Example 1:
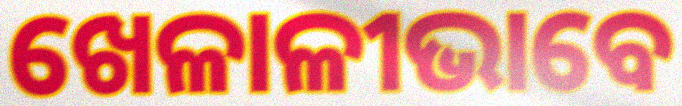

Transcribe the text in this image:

ଖେଳାଳୀଭାବେ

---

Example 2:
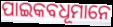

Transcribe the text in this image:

ପାଇକବଧୂମାନେ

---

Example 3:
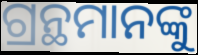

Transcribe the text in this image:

ଗ୍ରନ୍ଥମାନଙ୍କୁ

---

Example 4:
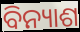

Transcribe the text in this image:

ବିନ୍ୟାଶ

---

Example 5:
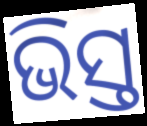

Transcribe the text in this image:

ଭିସ୍ତ